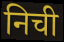
निची